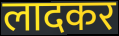
लादकर